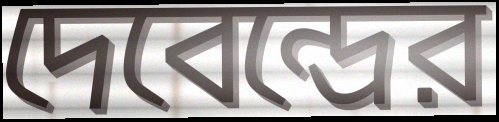
দেবেন্দ্রের